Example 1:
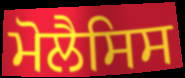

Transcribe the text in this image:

ਮੋਲੈਸਿਸ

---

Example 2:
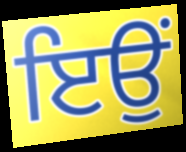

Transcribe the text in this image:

ਇਉਂ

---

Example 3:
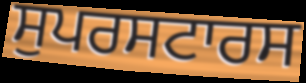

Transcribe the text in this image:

ਸੁਪਰਸਟਾਰਸ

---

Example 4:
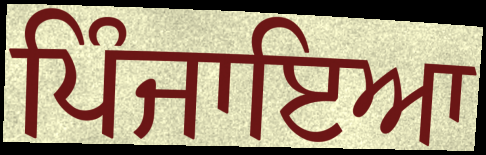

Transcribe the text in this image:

ਪਿੰਜਾਇਆ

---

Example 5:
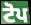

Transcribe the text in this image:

ਟੋਪ